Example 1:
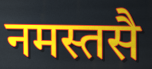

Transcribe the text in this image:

नमस्तसै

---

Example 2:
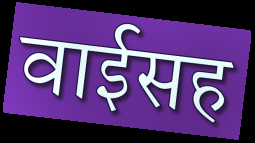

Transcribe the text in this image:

वाईसह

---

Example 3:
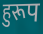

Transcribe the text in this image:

हुरूप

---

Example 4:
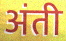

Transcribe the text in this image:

अंती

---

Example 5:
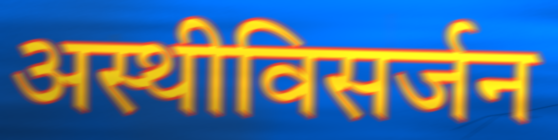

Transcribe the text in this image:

अस्थीविसर्जन